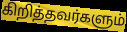
கிறித்தவர்களும்